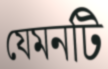
যেমনটি